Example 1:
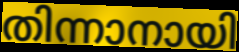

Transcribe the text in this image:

തിന്നാനായി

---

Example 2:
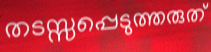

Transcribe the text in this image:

തടസ്സപ്പെടുത്തരുത്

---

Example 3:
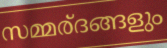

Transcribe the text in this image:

സമ്മര്ദങ്ങളും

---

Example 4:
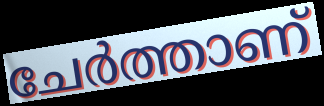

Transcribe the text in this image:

ചേർത്താണ്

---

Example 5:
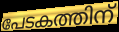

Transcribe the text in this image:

പേടകത്തിന്